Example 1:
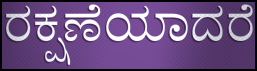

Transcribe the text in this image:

ರಕ್ಷಣೆಯಾದರೆ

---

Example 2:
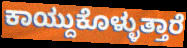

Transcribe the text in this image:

ಕಾಯ್ದುಕೊಳ್ಳುತ್ತಾರೆ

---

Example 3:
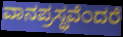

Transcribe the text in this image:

ವಾನಪ್ರಸ್ಥವೆಂದರೆ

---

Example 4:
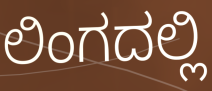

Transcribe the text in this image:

ಲಿಂಗದಲ್ಲಿ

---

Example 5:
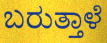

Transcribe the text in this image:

ಬರುತ್ತಾಳೆ